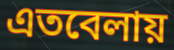
এতবেলায়